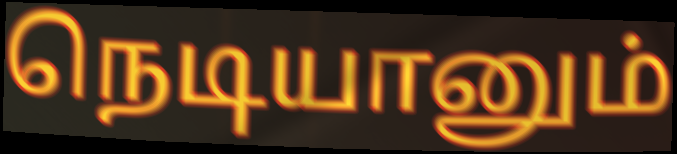
நெடியானும்